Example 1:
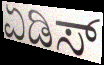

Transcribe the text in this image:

ಏಡಿಸ್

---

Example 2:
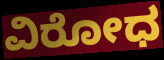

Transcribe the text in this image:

ವಿರೋಧ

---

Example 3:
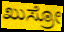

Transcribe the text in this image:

ಖುಸ್ರೋ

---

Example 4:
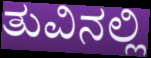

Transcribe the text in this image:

ತುವಿನಲ್ಲಿ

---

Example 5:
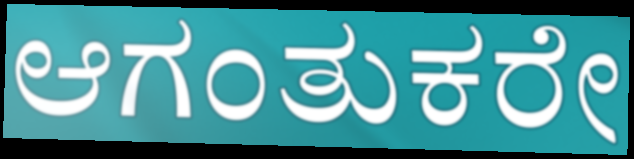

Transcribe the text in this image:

ಆಗಂತುಕರೇ